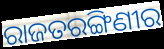
ରାଜତରଙ୍ଗିଣୀର